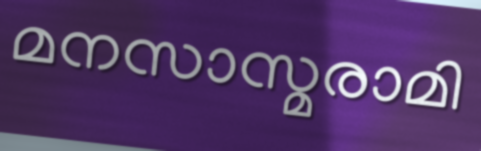
മനസാസ്മരാമി